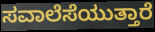
ಸವಾಲೆಸೆಯುತ್ತಾರೆ